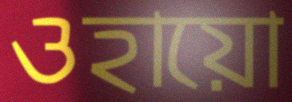
ওহায়ো